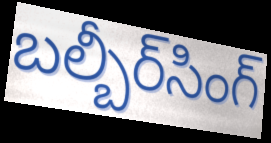
బల్బీర్‌సింగ్